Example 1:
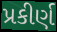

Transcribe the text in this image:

પ્રકીર્ણ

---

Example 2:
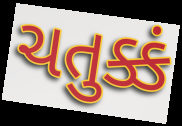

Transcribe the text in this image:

ચતુક્કં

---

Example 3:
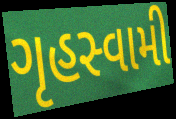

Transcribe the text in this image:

ગૃહસ્વામી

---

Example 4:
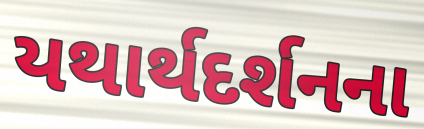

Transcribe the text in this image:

યથાર્થદર્શનના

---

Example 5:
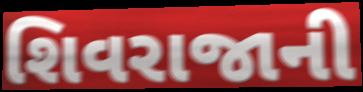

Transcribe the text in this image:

શિવરાજાની